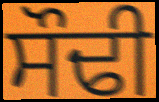
ਸੌਢੀ